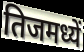
तिजमध्यें